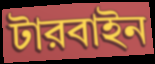
টারবাইন